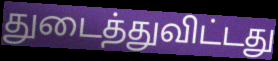
துடைத்துவிட்டது